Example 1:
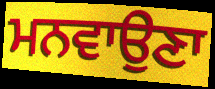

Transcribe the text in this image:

ਮਨਵਾਉਣਾ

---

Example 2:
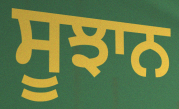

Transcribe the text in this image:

ਸੂਝਾਨ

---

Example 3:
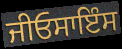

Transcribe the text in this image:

ਜੀਓਸਾਇੰਸ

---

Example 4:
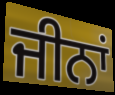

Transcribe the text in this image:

ਜੀਨਾਂ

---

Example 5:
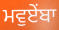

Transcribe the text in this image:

ਮਵੁਏਂਬਾ